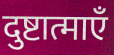
दुष्टात्माएँ